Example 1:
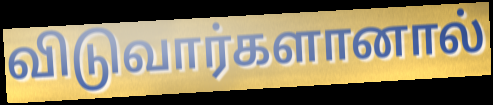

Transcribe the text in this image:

விடுவார்களானால்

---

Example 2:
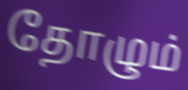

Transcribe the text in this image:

தோழும்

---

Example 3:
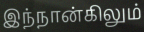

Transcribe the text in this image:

இந்நான்கிலும்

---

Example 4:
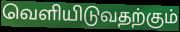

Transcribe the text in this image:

வெளியிடுவதற்கும்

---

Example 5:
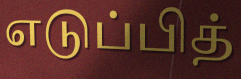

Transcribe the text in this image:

எடுப்பித்